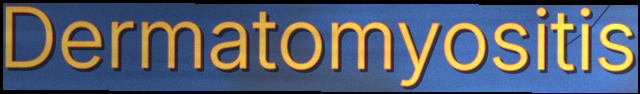
Dermatomyositis